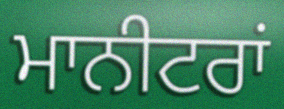
ਮਾਨੀਟਰਾਂ